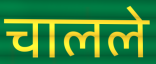
चालले